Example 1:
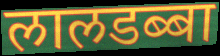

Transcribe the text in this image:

लालडब्बा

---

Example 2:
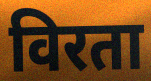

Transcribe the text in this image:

विरता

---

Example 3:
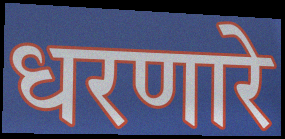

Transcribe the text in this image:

धरणारे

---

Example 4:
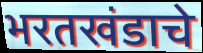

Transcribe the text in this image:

भरतखंडाचे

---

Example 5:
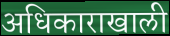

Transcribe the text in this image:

अधिकाराखाली